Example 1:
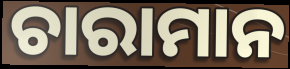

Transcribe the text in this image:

ଚାରାମାନ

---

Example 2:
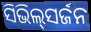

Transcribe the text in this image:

ସିଭିଲ୍‌ସର୍ଜନ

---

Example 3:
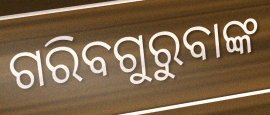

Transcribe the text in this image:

ଗରିବଗୁରୁବାଙ୍କ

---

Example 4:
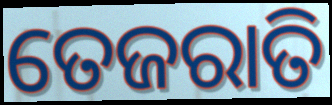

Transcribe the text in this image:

ତେଜରାତି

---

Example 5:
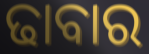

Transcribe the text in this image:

ଢାବାର